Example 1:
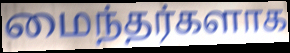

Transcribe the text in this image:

மைந்தர்களாக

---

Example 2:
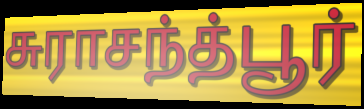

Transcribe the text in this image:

சுராசந்த்பூர்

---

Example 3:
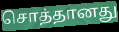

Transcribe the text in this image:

சொத்தானது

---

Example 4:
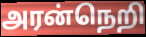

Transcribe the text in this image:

அரன்நெறி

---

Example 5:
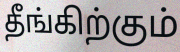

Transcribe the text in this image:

தீங்கிற்கும்